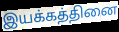
இயக்கத்தினை